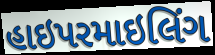
હાઇપરમાઇલિંગ